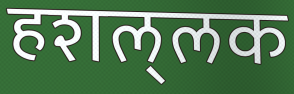
हशल्लक